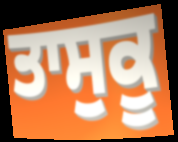
ਤਾਸੁਕੂ